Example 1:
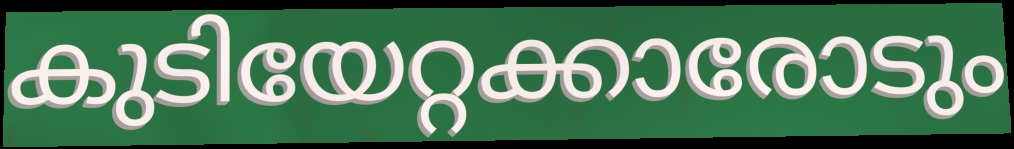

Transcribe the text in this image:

കുടിയേറ്റക്കാരോടും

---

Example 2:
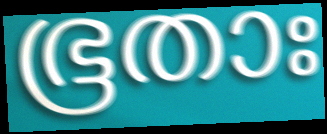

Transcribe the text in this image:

ഭൂതാഃ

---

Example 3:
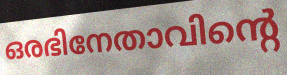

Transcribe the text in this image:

ഒരഭിനേതാവിന്റെ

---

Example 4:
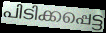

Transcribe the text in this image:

പിടിക്കപ്പെട്ട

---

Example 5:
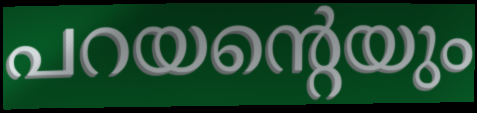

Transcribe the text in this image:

പറയന്റെയും